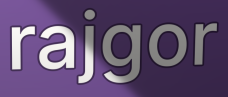
rajgor